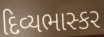
દિવ્યભાસ્કર